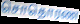
சொதொரண